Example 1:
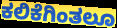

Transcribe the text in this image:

ಕಲಿಕೆಗಿಂತಲೂ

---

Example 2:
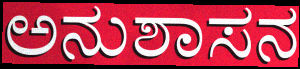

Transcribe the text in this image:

ಅನುಶಾಸನ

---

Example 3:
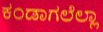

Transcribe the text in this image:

ಕಂಡಾಗಲೆಲ್ಲಾ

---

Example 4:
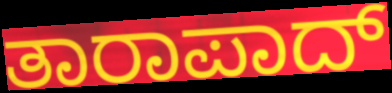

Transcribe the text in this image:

ತಾರಾಪಾದ್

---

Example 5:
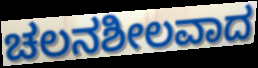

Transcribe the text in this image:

ಚಲನಶೀಲವಾದ